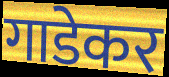
गाडेकर